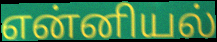
என்னியல்